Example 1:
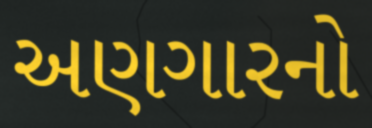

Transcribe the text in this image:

અણગારનો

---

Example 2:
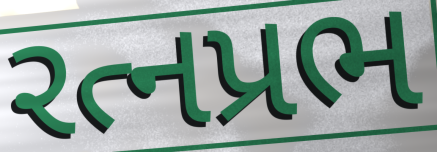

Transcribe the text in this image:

રત્નપ્રભ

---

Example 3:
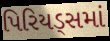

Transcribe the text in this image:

પિરિયડ્સમાં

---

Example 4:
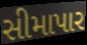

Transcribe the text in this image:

સીમાપાર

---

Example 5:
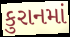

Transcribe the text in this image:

કુરાનમાં